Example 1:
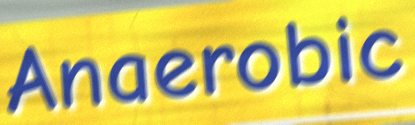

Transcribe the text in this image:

Anaerobic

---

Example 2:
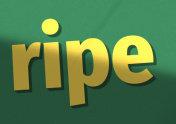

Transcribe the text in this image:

ripe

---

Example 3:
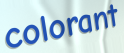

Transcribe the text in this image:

colorant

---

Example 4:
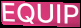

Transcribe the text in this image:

EQUIP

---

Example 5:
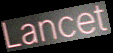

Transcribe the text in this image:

Lancet